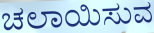
ಚಲಾಯಿಸುವ